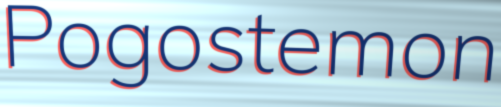
Pogostemon